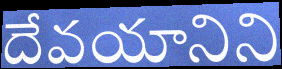
దేవయానిని